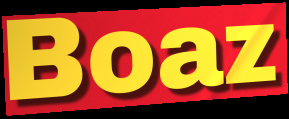
Boaz